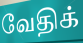
வேதிக்